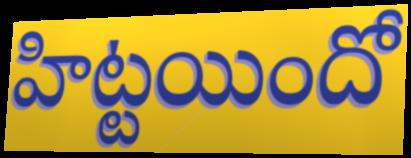
హిట్టయిందో